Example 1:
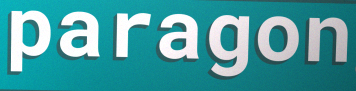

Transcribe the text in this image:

paragon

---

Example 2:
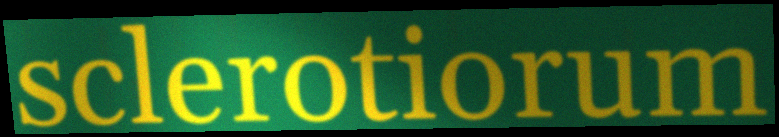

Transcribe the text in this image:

sclerotiorum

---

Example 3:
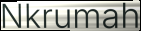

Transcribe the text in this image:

Nkrumah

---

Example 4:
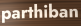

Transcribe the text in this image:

parthiban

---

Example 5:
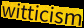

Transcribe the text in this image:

witticism